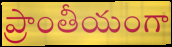
ప్రాంతీయంగా